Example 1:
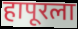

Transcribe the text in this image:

हापूरला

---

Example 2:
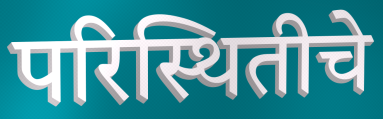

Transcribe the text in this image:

परिस्थितीचे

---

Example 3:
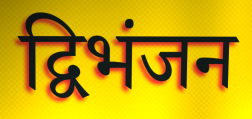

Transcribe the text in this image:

द्विभंजन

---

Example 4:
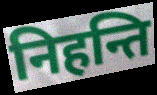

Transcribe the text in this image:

निहन्ति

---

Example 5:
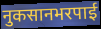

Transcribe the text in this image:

नुकसानभरपाई